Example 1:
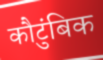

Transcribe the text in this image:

कौटुंबिक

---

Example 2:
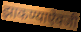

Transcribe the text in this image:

झाकण्याऐवजी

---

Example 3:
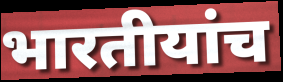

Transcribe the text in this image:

भारतीयांच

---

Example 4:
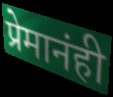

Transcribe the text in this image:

प्रेमानंही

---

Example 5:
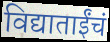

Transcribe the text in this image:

विद्याताईंचं